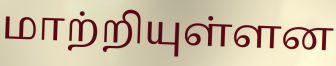
மாற்றியுள்ளன